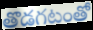
తొడగటంతో